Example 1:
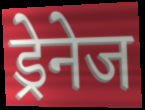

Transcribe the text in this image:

ड्रेनेज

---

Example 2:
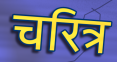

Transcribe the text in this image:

चरित्र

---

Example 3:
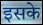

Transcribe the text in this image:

इसके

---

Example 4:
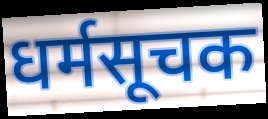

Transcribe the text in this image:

धर्मसूचक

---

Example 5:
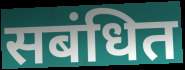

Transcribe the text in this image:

सबंधित